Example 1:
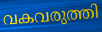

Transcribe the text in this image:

വകവരുത്തി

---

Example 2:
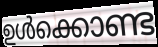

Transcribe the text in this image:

ഉൾക്കൊണ്ട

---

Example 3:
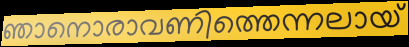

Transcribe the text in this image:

ഞാനൊരാവണിത്തെന്നലായ്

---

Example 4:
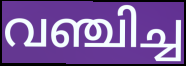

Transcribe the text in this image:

വഞ്ചിച്ച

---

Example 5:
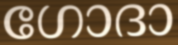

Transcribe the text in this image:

ഗോദാ